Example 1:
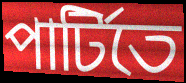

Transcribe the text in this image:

পার্টিতে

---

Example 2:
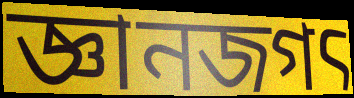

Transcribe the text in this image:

জ্ঞানজগৎ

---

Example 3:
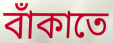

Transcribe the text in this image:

বাঁকাতে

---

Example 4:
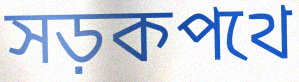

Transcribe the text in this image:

সড়কপথে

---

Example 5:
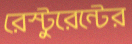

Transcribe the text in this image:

রেস্টুরেন্টের